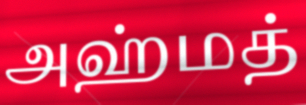
அஹ்மத்